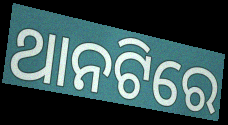
ଥାନଟିରେ